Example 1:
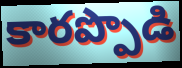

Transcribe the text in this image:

కారప్పొడి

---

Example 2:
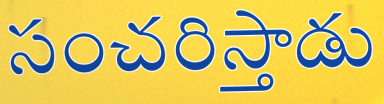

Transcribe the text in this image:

సంచరిస్తాడు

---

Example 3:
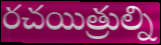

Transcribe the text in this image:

రచయిత్రుల్ని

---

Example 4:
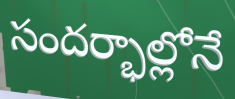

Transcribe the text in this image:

సందర్భాల్లోనే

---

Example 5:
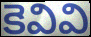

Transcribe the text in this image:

కెవివి